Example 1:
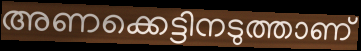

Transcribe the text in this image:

അണക്കെട്ടിനടുത്താണ്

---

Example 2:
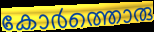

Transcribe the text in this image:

കോർത്തൊരു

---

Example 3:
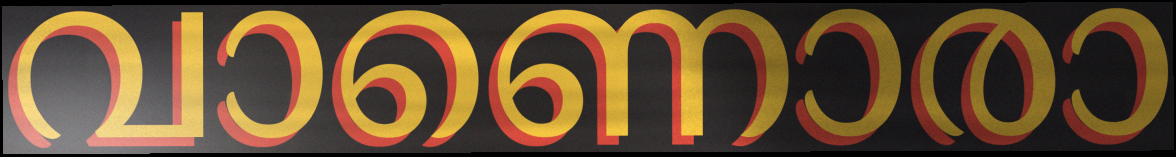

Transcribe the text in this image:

വാണൊരാ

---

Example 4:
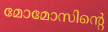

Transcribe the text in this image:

മോമോസിന്റെ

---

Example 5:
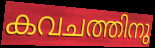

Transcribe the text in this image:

കവചത്തിനു